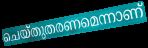
ചെയ്തുതരണമെന്നാണ്